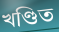
খণ্ডিত